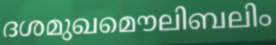
ദശമുഖമൌലിബലിം